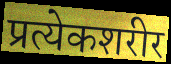
प्रत्येकशरीर